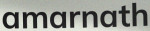
amarnath